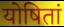
योषितां